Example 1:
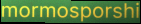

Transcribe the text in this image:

mormosporshi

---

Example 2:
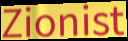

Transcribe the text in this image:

Zionist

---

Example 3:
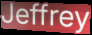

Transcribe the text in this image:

Jeffrey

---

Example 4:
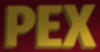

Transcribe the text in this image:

PEX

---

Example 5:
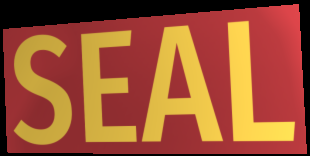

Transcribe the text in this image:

SEAL